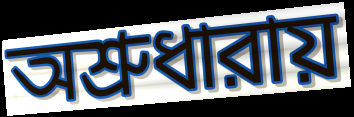
অশ্রুধারায়